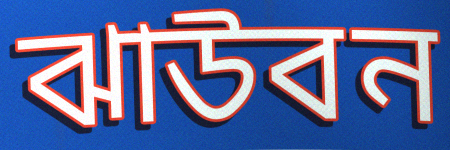
ঝাউবন